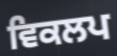
ਵਿਕਲਪ